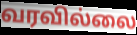
வரவில்லை